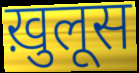
ख़ुलूस